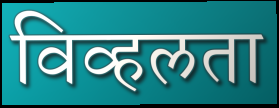
विव्हलता